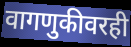
वागणुकीवरही